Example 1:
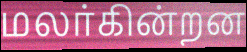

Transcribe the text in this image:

மலர்கின்றன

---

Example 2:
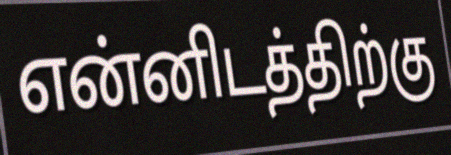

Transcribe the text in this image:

என்னிடத்திற்கு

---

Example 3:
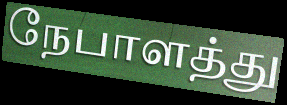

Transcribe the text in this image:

நேபாளத்து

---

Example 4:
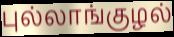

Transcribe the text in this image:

புல்லாங்குழல்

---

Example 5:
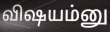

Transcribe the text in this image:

விஷயம்னு